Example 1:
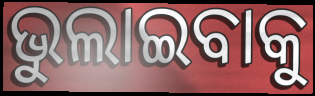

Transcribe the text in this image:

ଭୁଲାଇବାକୁ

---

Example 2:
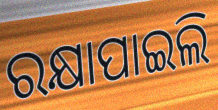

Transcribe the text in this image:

ରକ୍ଷାପାଇଲି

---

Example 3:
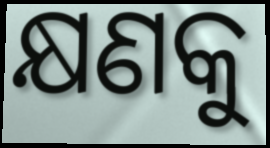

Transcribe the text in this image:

କ୍ଷଣକୁ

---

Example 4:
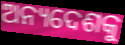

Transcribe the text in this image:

ଅନ୍ୟଦେଶକୁ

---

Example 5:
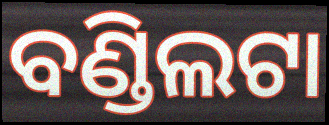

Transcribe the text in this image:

ବଣ୍ଡିଲଟା